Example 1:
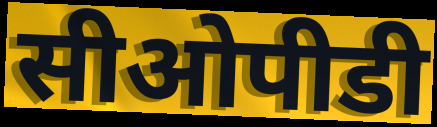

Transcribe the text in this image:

सीओपीडी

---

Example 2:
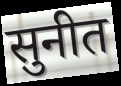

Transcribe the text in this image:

सुनीत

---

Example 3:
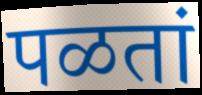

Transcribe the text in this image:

पळतां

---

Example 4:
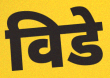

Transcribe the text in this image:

विडे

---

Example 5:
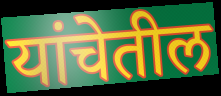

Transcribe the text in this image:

यांचेतील